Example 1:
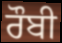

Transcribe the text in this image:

ਰੌਬੀ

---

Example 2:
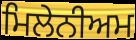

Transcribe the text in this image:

ਮਿਲੇਨੀਅਮ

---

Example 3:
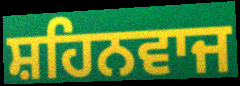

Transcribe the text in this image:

ਸ਼ਹਿਨਵਾਜ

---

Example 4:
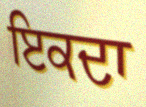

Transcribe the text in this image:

ਇਕਦਾ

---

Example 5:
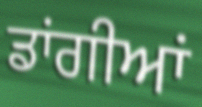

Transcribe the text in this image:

ਡਾਂਗੀਆਂ